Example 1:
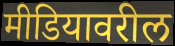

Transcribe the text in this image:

मीडियावरील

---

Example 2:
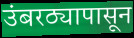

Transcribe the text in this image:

उंबरठ्यापासून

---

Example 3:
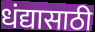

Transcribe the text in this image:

धंद्यासाठी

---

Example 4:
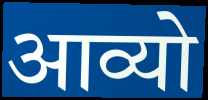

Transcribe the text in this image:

आव्यो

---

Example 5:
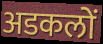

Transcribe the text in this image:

अडकलों